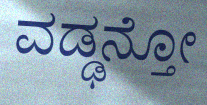
ವಡ್ಢನ್ತೋ